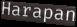
Harapan